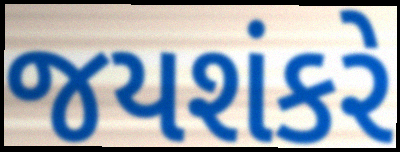
જયશંકરે